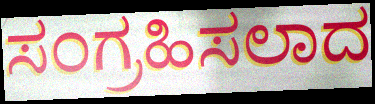
ಸಂಗ್ರಹಿಸಲಾದ